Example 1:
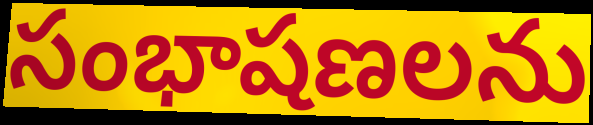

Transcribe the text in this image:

సంభాషణలను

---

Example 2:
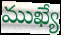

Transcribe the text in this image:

ముఖ్యే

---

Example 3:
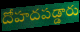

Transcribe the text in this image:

దోహదపడ్డారు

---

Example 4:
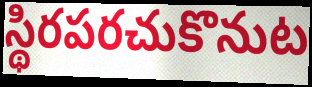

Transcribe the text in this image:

స్థిరపరచుకొనుట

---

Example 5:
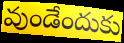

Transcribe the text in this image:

వుండేందుకు